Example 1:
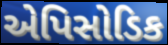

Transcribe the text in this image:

એપિસોડિક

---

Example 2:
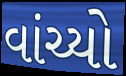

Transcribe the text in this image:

વાંચ્યો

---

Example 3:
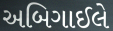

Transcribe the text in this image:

અબિગાઈલે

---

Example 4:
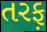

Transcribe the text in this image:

તરફ઼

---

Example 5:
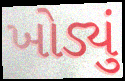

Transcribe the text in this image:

ખોડ્યું